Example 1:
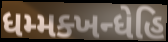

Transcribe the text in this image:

ધમ્મક્ખન્ધેહિ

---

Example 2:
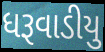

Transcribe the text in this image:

ધરૂવાડીયુ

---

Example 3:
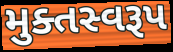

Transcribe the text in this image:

મુક્તસ્વરૂપ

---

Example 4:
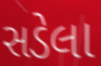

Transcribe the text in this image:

સડેલા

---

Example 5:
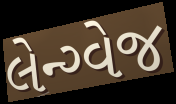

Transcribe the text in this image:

લેન્ગ્વેજ